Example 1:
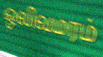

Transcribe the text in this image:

ஒலிவமரம்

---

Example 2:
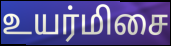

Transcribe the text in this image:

உயர்மிசை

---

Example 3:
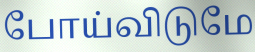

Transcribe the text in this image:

போய்விடுமே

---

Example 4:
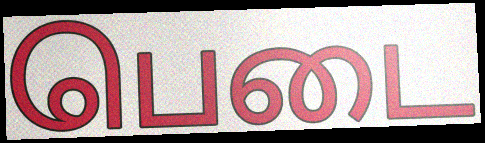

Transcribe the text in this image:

பெடை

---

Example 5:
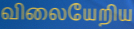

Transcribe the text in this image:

விலையேறிய